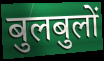
बुलबुलों